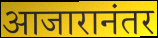
आजारानंतर